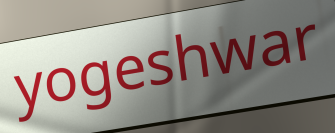
yogeshwar